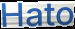
Hato